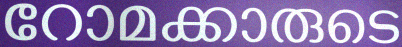
റോമക്കാരുടെ